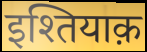
इश्तियाक़